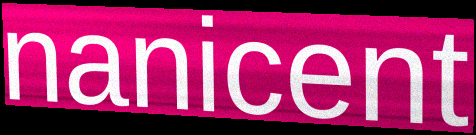
nanicent